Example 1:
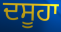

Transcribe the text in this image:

ਦਸੂਹਾ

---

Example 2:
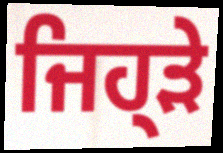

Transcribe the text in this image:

ਜਿਹ੍ੜੇ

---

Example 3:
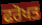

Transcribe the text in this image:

ਫਰੋਖਤ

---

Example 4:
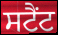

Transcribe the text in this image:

ਸਟੈਂਟ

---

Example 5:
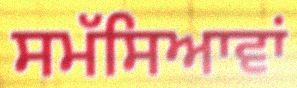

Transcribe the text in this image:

ਸਮੱਸਿਆਵਾਂ